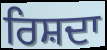
ਰਿਸ਼ਦਾ